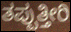
ತಪ್ಪುತ್ತೀರಿ